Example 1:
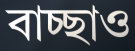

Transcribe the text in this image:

বাচ্ছাও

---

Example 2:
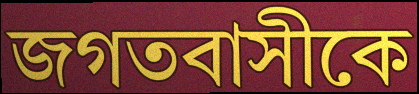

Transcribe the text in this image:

জগতবাসীকে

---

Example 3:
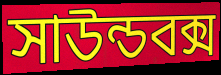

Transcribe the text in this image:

সাউন্ডবক্স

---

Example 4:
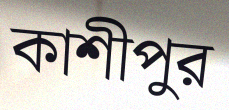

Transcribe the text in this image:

কাশীপুর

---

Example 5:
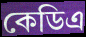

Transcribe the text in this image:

কেডিএ